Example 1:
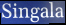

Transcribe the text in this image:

Singala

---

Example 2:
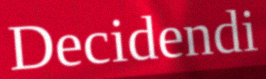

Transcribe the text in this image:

Decidendi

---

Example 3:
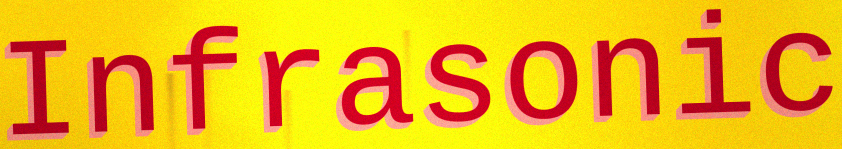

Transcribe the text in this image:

Infrasonic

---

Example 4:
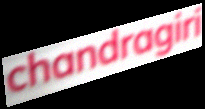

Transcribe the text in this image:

chandragiri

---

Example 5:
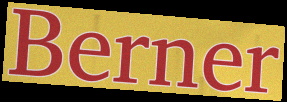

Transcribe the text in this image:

Berner